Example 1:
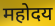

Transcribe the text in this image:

महोदय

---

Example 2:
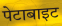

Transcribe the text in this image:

पेटाबाइट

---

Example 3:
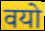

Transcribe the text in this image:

वयो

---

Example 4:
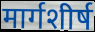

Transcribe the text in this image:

मार्गशीर्ष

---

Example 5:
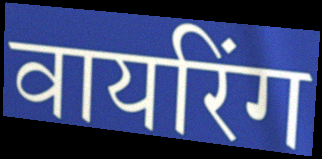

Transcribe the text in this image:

वायरिंग